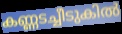
കണ്ണടച്ചീടുകിൽ